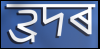
হ্ৰদৰ